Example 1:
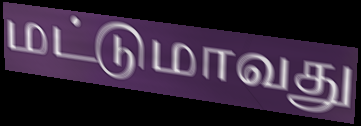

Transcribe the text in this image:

மட்டுமாவது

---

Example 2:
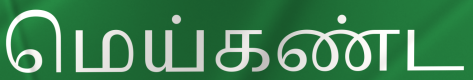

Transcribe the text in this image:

மெய்கண்ட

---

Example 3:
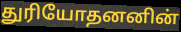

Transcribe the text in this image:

துரியோதனனின்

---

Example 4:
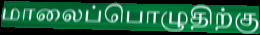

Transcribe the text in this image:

மாலைப்பொழுதிற்கு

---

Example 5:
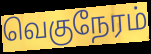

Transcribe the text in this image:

வெகுநேரம்